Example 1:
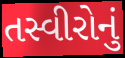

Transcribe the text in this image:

તસ્વીરોનું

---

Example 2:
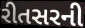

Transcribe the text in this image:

રીતસરની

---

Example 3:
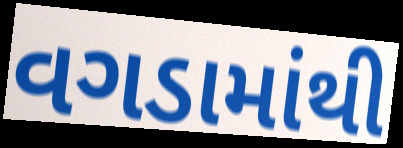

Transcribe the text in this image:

વગડામાંથી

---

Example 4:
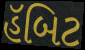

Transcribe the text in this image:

હૅબિટ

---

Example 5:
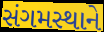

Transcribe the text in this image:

સંગમસ્થાને